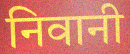
निवानी